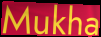
Mukha